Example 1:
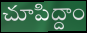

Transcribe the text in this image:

చూపిద్దాం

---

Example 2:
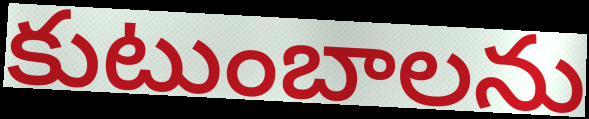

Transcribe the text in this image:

కుటుంబాలను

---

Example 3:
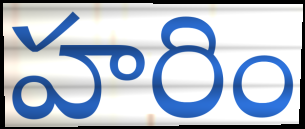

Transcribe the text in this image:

హరిం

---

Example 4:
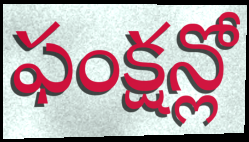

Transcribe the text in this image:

ఫంక్షన్లో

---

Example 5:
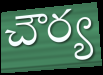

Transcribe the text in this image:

చౌర్య